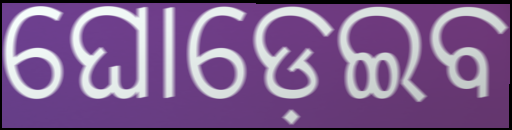
ଘୋଡ଼େଇବ